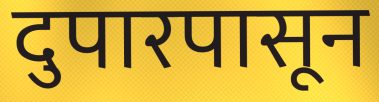
दुपारपासून